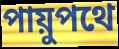
পায়ুপথে